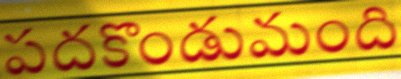
పదకొండుమంది